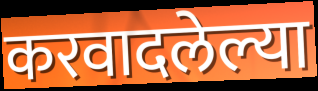
करवादलेल्या